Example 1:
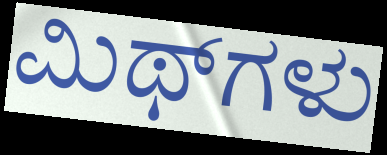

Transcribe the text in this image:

ಮಿಥ್‌ಗಳು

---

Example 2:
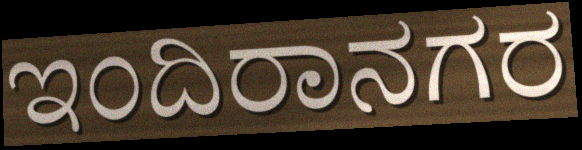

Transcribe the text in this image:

ಇಂದಿರಾನಗರ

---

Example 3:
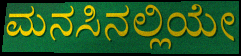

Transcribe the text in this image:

ಮನಸಿನಲ್ಲಿಯೇ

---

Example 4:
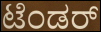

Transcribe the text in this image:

ಟೆಂಡರ್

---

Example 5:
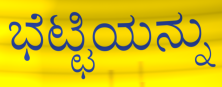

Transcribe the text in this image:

ಭೆಟ್ಟಿಯನ್ನು